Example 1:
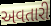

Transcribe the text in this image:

અવતારી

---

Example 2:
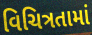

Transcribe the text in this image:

વિચિત્રતામાં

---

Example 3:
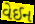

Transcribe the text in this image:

વેઈન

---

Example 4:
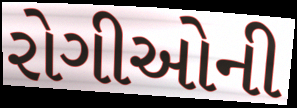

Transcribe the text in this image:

રોગીઓની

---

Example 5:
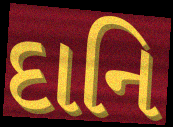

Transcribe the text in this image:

દાનિ